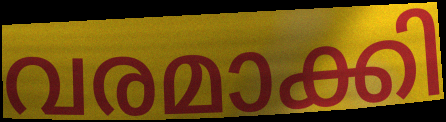
വരമാക്കി